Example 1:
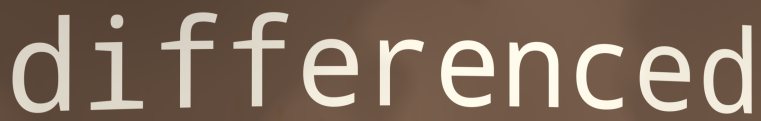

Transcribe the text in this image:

differenced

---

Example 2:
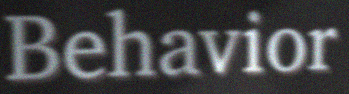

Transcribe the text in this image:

Behavior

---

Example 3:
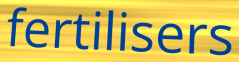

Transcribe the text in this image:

fertilisers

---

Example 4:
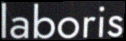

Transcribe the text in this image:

laboris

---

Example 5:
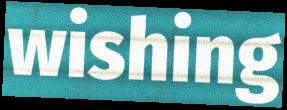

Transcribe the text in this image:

wishing